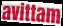
avittam